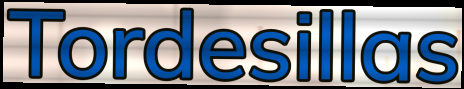
Tordesillas